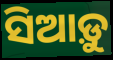
ସିଆଡ଼ୁ